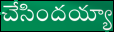
చేసిందయ్యా